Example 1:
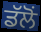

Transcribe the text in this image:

ਡੱਲੋਂ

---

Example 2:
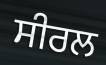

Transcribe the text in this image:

ਸੀਰਲ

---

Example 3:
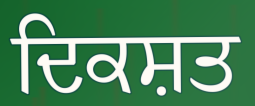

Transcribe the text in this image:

ਦਿਕਸ਼ਤ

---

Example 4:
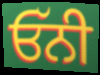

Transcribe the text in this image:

ਓੱਨੀ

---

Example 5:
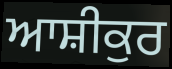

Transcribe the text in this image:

ਆਸ਼ੀਕੁਰ